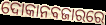
ଦୋକାନବଜାରରେ